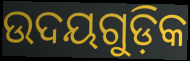
ଉଦୟଗୁଡ଼ିକ